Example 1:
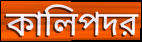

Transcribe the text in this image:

কালিপদর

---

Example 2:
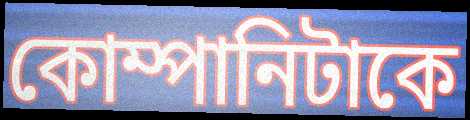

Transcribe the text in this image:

কোম্পানিটাকে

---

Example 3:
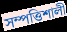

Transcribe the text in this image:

সম্পত্তিশালী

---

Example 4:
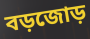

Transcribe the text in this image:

বড়জোড়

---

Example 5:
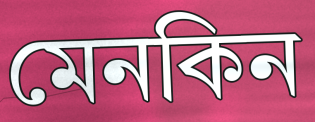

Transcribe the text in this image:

মেনকিন